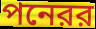
পনেরর